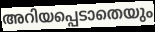
അറിയപ്പെടാതെയും